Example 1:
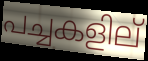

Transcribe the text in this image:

പച്ചകളില്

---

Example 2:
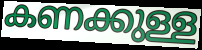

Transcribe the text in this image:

കണക്കുള്ള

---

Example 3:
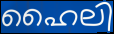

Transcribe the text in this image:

ഹൈലി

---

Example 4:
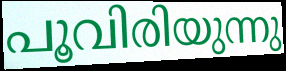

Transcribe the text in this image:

പൂവിരിയുന്നു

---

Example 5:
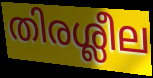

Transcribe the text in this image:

തിരശ്ലീല